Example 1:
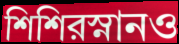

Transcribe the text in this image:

শিশিরস্নানও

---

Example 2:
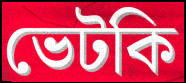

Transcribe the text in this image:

ভেটকি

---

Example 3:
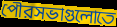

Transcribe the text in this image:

পৌরসভাগুলোতে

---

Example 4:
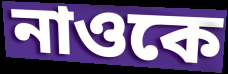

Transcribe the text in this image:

নাওকে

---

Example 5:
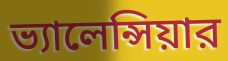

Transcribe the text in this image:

ভ্যালেন্সিয়ার